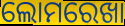
ଲୋମରେଖା